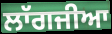
ਲਾੱਗਜੀਆ